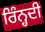
ਰਿੰਨ੍ਹਦੀ